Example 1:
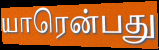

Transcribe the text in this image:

யாரென்பது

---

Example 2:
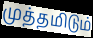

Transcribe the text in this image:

முத்தமிடும்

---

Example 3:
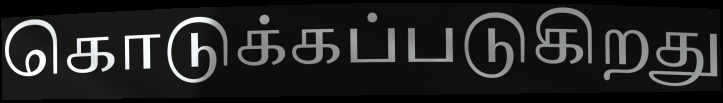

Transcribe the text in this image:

கொடுக்கப்படுகிறது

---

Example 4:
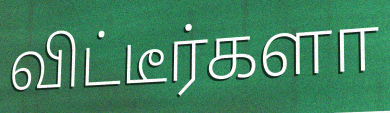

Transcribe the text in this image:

விட்டீர்களா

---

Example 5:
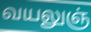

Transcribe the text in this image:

வயலுஞ்